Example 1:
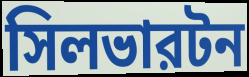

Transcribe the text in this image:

সিলভারটন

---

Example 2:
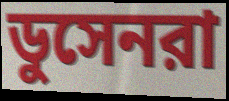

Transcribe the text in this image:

ডুসেনরা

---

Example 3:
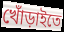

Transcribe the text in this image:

খোঁড়াইতে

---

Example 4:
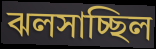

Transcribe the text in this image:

ঝলসাচ্ছিল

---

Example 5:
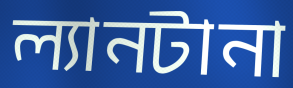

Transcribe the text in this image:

ল্যানটানা